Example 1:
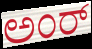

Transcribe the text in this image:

ಅಂರ್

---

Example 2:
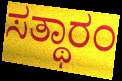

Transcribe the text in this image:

ಸತ್ಥಾರಂ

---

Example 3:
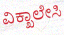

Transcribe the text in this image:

ವಿಕ್ಖಾಲೇಸಿ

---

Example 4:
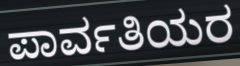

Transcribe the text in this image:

ಪಾರ್ವತಿಯರ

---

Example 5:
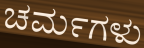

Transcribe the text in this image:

ಚರ್ಮಗಳು